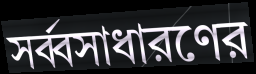
সর্ব্বসাধারণের